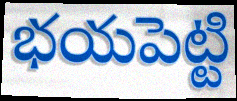
భయపెట్టి